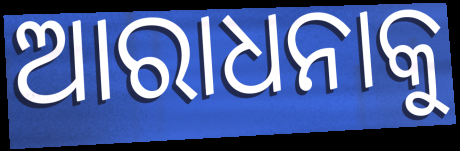
ଆରାଧନାକୁ